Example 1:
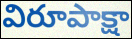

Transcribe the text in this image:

విరూపాక్షా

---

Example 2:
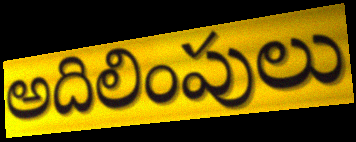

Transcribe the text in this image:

అదిలింపులు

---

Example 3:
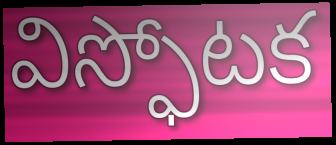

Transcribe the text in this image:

విస్ఫోటక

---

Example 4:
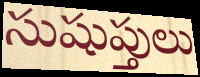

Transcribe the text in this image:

సుషుప్తులు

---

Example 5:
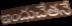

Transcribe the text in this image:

ఇందుచేతనే